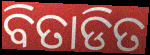
ବିତାଡିତ